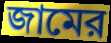
জামের